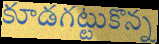
కూడగట్టుకొన్న